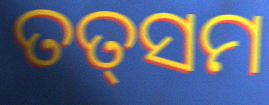
ତତ୍‍ସମ